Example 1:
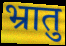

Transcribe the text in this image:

भ्रातु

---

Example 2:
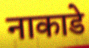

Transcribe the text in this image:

नाकाडे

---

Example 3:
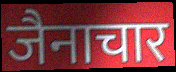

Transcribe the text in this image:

जैनाचार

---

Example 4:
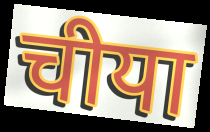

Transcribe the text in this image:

चीया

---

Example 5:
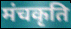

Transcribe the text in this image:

मंचकृति